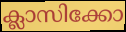
ക്ലാസിക്കോ